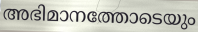
അഭിമാനത്തോടെയും